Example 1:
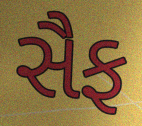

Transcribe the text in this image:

સૈફ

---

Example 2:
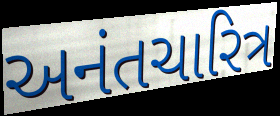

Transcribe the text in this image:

અનંતચારિત્ર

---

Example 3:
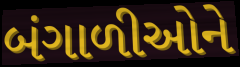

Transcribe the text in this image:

બંગાળીઓને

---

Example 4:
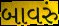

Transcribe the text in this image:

બાવરું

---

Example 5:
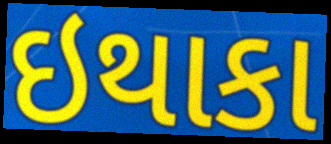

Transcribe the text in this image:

ઇથાકા